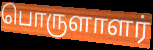
பொருளாளர்